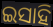
ଇସାହି